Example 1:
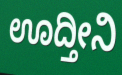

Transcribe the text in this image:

ಊದ್ತೀನಿ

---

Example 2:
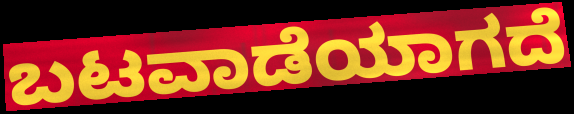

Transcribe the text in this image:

ಬಟವಾಡೆಯಾಗದೆ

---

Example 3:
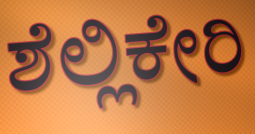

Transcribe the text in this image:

ಶೆಲ್ಲಿಕೇರಿ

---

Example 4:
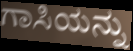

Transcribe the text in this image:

ಗಾಸಿಯನ್ನು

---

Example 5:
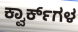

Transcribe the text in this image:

ಕ್ವಾರ್ಕ್‌ಗಳ